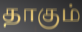
தாகும்